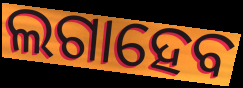
ଲଗାହେବ